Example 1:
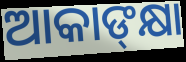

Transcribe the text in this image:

ଆକାଙ୍‌କ୍ଷା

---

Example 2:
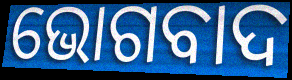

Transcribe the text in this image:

ଭୋଗବାଦ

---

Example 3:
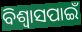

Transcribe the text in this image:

ବିଶ୍ୱାସପାଇଁ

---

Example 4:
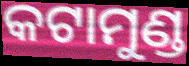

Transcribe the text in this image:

କଟାମୁଣ୍ଡ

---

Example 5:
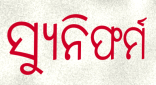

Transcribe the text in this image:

ସ୍ୟୁନିଫର୍ମ